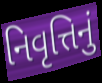
નિવૃત્તિનું